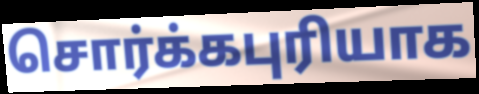
சொர்க்கபுரியாக